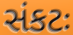
સંકટઃ